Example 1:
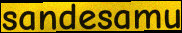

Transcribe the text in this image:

sandesamu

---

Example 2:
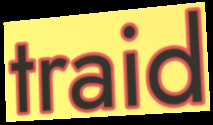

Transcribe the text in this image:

traid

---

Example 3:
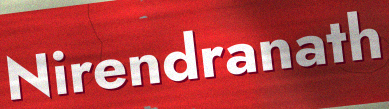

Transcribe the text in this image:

Nirendranath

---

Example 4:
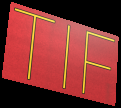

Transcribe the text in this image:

TIF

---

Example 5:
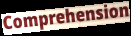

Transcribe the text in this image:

Comprehension